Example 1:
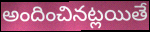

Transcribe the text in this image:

అందించినట్లయితే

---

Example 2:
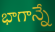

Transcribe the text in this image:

భాగాన్నే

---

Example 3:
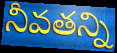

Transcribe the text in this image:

నీవతన్ని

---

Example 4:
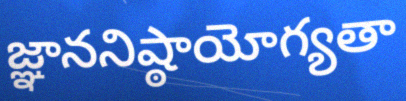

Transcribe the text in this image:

జ్ఞాననిష్ఠాయోగ్యతా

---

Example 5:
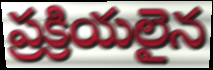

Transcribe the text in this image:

ప్రక్రియలైన